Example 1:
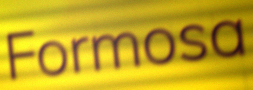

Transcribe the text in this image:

Formosa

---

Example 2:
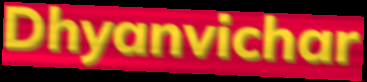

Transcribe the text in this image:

Dhyanvichar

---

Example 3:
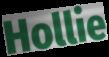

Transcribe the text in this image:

Hollie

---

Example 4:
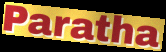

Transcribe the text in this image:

Paratha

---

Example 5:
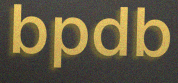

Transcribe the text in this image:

bpdb